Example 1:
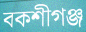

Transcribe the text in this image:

বকশীগঞ্জ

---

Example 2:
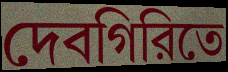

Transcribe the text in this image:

দেবগিরিতে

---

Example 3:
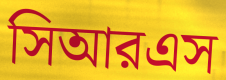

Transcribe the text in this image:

সিআরএস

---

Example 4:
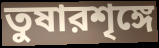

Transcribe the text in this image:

তুষারশৃঙ্গে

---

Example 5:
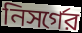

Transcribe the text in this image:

নিসর্গের